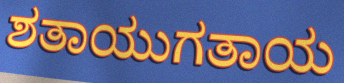
ಶತಾಯುಗತಾಯ